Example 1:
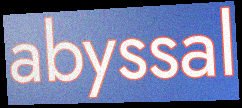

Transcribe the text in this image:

abyssal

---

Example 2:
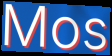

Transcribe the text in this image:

Mos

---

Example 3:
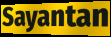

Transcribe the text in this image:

Sayantan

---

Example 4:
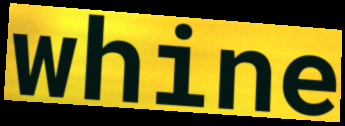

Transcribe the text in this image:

whine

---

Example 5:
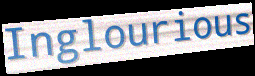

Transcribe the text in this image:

Inglourious